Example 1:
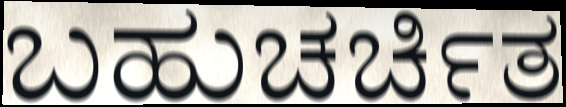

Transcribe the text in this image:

ಬಹುಚರ್ಚಿತ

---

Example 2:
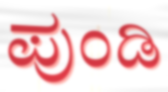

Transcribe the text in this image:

ಪುಂಡಿ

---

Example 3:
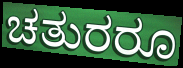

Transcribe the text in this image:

ಚತುರರೂ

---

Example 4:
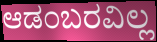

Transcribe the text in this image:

ಆಡಂಬರವಿಲ್ಲ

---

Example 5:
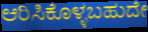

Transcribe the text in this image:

ಆರಿಸಿಕೊಳ್ಳಬಹುದೇ